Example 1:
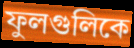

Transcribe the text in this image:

ফুলগুলিকে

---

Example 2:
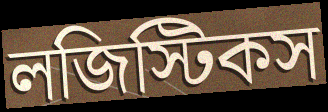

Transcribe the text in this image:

লজিস্টিকস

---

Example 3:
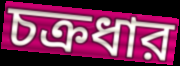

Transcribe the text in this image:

চক্রধার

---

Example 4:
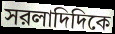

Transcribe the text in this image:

সরলাদিদিকে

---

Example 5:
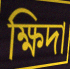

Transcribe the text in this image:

ক্ষিদা